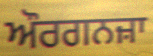
ਔਰਗਨਜ਼ਾ